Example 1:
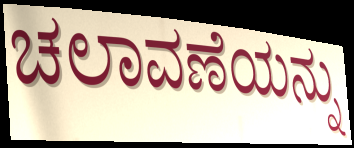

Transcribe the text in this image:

ಚಲಾವಣೆಯನ್ನು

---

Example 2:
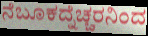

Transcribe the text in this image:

ನೆಬೂಕದ್ನೆಚ್ಚರನಿಂದ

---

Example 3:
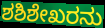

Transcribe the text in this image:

ಶಶಿಶೇಖರನು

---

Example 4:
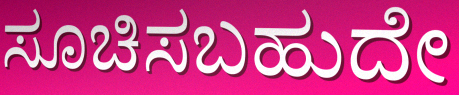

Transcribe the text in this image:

ಸೂಚಿಸಬಹುದೇ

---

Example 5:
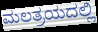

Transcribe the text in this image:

ಮಲತ್ರಯದಲ್ಲಿ